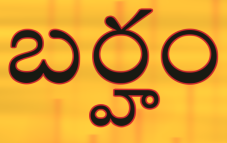
బర్హం